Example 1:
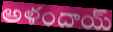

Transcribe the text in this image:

అళందాయ్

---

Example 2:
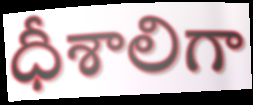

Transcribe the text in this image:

ధీశాలిగా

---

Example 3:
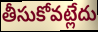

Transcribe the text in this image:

తీసుకోవట్లేదు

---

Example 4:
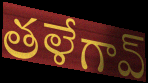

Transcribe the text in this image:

తళేగావ్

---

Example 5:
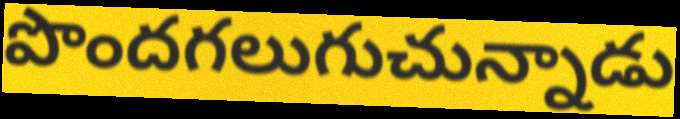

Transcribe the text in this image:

పొందగలుగుచున్నాడు